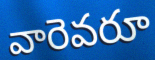
వారెవరూ